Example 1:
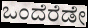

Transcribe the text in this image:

ಒಂದೆರೆಡೇ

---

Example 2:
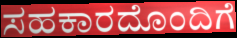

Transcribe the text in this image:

ಸಹಕಾರದೊಂದಿಗೆ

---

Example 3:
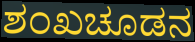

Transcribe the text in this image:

ಶಂಖಚೂಡನ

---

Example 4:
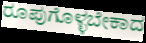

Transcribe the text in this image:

ರೂಪುಗೊಳ್ಳಬೇಕಾದ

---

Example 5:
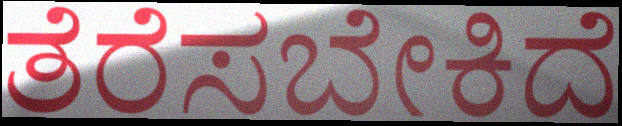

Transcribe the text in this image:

ತೆರೆಸಬೇಕಿದೆ